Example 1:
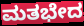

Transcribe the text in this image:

ಮತಭೇದ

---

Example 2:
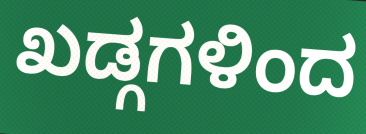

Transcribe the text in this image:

ಖಡ್ಗಗಳಿಂದ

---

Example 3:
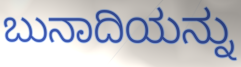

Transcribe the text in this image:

ಬುನಾದಿಯನ್ನು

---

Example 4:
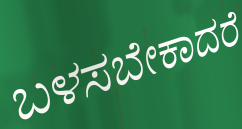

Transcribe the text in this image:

ಬಳಸಬೇಕಾದರೆ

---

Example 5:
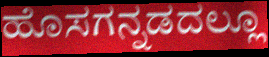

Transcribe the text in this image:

ಹೊಸಗನ್ನಡದಲ್ಲೂ